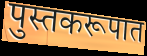
पुस्तकरूपात